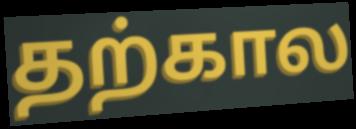
தற்கால